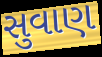
સુવાણ